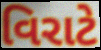
વિરાટે